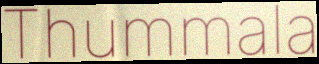
Thummala